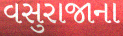
વસુરાજાના